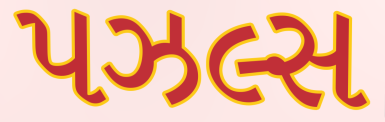
પઝલ્સ